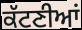
ਕੱਟਣੀਆਂ